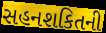
સહનશકિતની